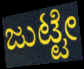
ಜುಟ್ಟೇ